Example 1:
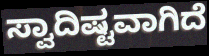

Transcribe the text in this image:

ಸ್ವಾದಿಷ್ಟವಾಗಿದೆ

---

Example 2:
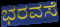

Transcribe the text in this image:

ಭರವಸೆ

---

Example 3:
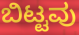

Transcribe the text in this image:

ಬಿಟ್ಟವು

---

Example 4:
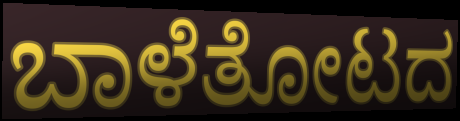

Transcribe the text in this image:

ಬಾಳೆತೋಟದ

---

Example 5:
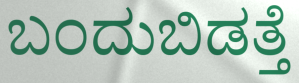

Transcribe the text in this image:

ಬಂದುಬಿಡತ್ತೆ